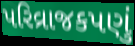
પરિવ્રાજકપણું